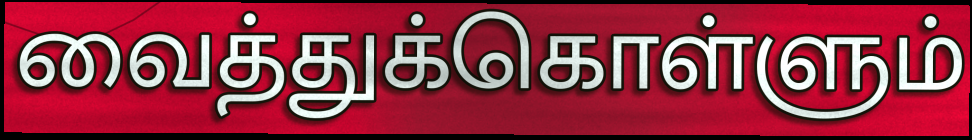
வைத்துக்கொள்ளும்